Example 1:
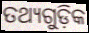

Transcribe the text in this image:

ତଥ୍ୟଗୁଡ଼ିକ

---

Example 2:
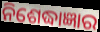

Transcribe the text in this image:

ନିଶେଦ୍ଧାଜ୍ଞାର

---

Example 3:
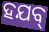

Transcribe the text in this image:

ହଯବ୍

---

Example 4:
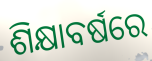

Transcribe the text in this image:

ଶିକ୍ଷାବର୍ଷରେ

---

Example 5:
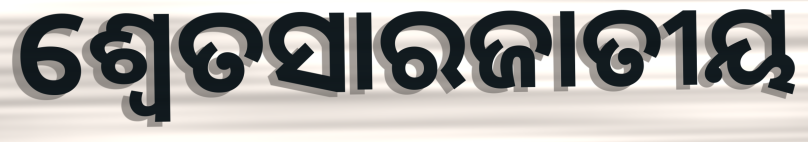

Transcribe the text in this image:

ଶ୍ଵେତସାରଜାତୀୟ